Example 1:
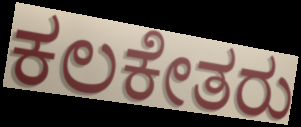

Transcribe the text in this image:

ಕಲಕೇತರು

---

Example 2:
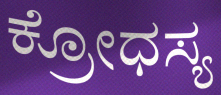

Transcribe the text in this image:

ಕ್ರೋಧಸ್ಯ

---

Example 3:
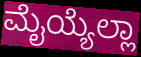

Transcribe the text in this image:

ಮೈಯ್ಯೆಲ್ಲಾ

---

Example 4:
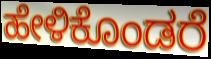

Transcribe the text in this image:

ಹೇಳಿಕೊಂಡರೆ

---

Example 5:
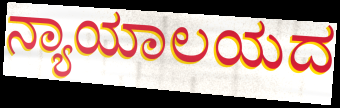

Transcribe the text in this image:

ನ್ಯಾಯಾಲಯದ